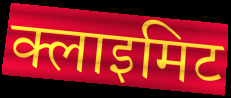
क्लाइमिट